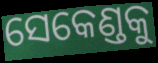
ସେକେଣ୍ଡକୁ